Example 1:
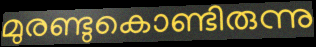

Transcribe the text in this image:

മുരണ്ടുകൊണ്ടിരുന്നു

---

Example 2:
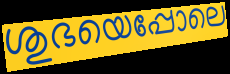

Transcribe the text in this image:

ശുഭയെപ്പോലെ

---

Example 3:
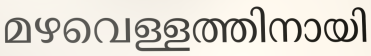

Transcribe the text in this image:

മഴവെള്ളത്തിനായി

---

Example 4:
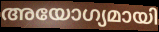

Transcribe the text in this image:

അയോഗ്യമായി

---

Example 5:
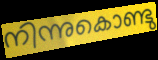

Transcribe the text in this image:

നിന്നുകൊണ്ടു